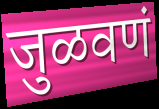
जुळवणं